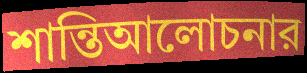
শান্তিআলোচনার